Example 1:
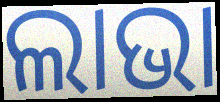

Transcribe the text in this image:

ଲାଭା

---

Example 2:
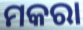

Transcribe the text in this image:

ମକରା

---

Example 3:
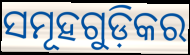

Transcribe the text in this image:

ସମୂହଗୁଡ଼ିକର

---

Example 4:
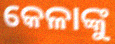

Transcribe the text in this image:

କେଳାଙ୍କୁ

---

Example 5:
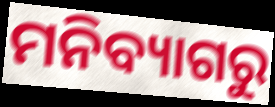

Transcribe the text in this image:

ମନିବ୍ୟାଗରୁ